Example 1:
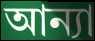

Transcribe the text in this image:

আন্যা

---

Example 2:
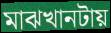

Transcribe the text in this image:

মাঝখানটায়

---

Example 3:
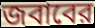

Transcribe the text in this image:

জবাবের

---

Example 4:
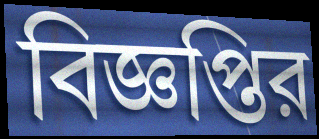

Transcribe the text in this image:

বিজ্ঞপ্তির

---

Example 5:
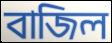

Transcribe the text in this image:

বাজিল